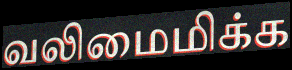
வலிமைமிக்க